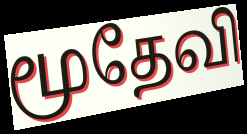
மூதேவி